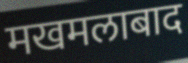
मखमलाबाद